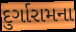
દુર્ગારામના